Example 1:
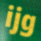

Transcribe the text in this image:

ijg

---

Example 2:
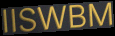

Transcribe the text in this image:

IISWBM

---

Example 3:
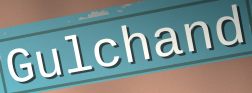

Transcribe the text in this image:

Gulchand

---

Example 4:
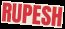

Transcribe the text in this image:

RUPESH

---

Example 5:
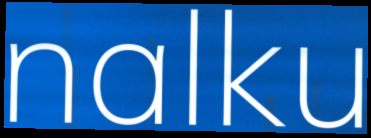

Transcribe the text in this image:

nalku